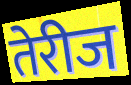
तेरीज